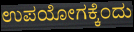
ಉಪಯೋಗಕ್ಕೆಂದು